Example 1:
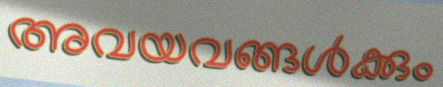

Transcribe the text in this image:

അവയവങ്ങൾക്കും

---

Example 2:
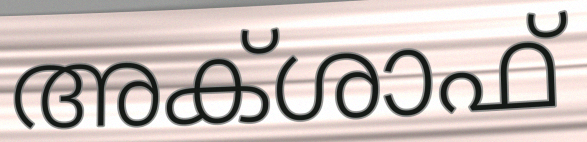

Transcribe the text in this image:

അക്ശാഫ്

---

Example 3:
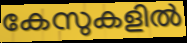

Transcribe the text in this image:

കേസുകളിൽ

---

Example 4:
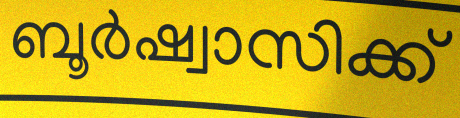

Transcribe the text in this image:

ബൂർഷ്വാസിക്ക്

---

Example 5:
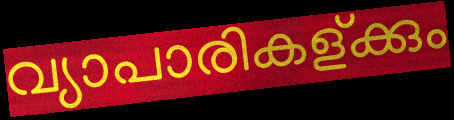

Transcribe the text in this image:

വ്യാപാരികള്ക്കും